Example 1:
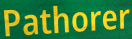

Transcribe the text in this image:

Pathorer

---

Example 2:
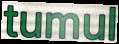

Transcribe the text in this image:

tumul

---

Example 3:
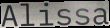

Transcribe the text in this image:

Alissa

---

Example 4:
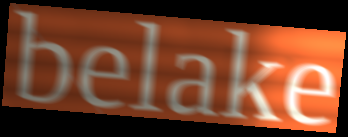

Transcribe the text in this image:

belake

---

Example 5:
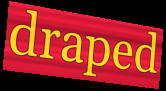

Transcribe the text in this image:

draped